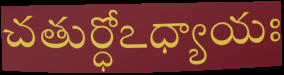
చతుర్ధోఽధ్యాయః